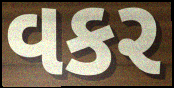
વકર